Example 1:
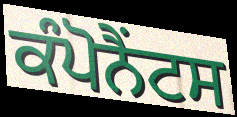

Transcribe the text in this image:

ਕੰਪੋਨੈਂਟਸ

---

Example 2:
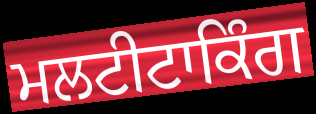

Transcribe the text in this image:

ਮਲਟੀਟਾਕਿੰਗ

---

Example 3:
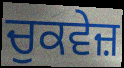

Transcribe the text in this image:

ਚੁਕਵੇਜ਼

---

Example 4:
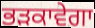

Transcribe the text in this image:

ਭੜਕਾਵੇਗਾ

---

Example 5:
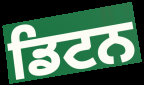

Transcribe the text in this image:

ਡਿਟਨ